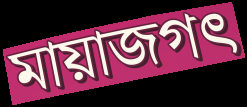
মায়াজগৎ